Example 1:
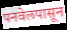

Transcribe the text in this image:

पनवेलपासून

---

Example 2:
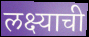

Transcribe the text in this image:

लक्ष्याची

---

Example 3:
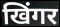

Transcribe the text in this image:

खिंगर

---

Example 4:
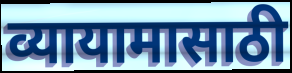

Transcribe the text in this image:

व्यायामासाठी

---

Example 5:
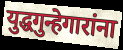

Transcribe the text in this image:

युद्धगुन्हेगारांना